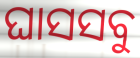
ଘାସସବୁ